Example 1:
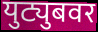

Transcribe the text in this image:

युट्युबवर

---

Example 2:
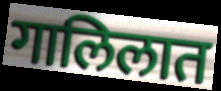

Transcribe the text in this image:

गालिलात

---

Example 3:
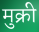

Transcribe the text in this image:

मुक्री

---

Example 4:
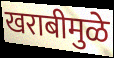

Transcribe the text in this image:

खराबीमुळे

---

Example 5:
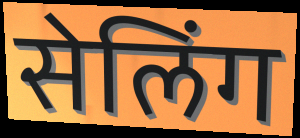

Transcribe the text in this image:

सेलिंग